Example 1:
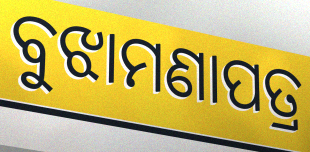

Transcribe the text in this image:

ବୁଝାମଣାପତ୍ର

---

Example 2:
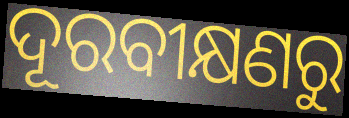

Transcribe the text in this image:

ଦୂରବୀକ୍ଷଣରୁ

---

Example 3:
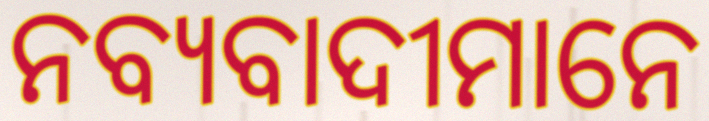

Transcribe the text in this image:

ନବ୍ୟବାଦୀମାନେ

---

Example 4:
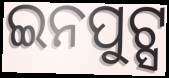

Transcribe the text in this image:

ଇନପୁଟ୍ସ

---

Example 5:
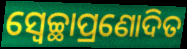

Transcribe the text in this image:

ସ୍ୱେଚ୍ଛାପ୍ରଣୋଦିତ